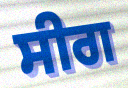
ਸੀਗ